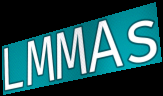
LMMAs